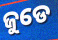
ଜୁଡେ